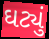
ઘટ્યું